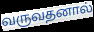
வருவதனால்